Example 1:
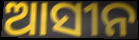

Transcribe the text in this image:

ଆସୀନ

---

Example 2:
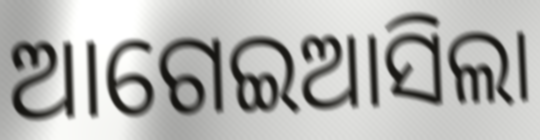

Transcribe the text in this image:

ଆଗେଇଆସିଲା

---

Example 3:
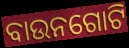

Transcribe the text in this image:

ବାଉନଗୋଟି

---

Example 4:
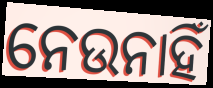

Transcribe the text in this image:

ନେଉନାହିଁ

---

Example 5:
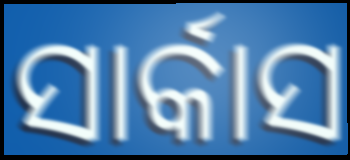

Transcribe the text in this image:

ସାର୍କାସ